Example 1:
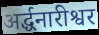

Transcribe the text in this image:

अर्द्धनारीश्वर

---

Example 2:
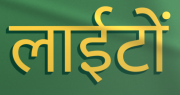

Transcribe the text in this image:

लाईटों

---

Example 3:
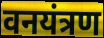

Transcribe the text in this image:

वनयंत्रण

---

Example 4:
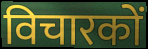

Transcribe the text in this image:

विचारकों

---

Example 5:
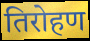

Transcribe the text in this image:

तिरोहण